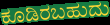
ಕೂಡಿರಬಹುದು